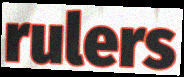
rulers